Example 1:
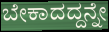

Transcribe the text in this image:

ಬೇಕಾದದ್ದನ್ನೇ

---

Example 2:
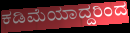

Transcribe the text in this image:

ಕಡಿಮೆಯಾದ್ದರಿಂದ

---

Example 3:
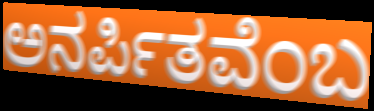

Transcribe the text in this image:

ಅನರ್ಪಿತವೆಂಬ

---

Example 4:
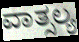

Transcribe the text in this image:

ವಾತ್ಸಲ್ಯ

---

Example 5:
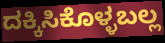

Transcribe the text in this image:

ದಕ್ಕಿಸಿಕೊಳ್ಳಬಲ್ಲ